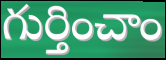
గుర్తించాం